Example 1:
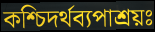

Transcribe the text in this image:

কশ্চিদর্থব্যপাশ্রয়ঃ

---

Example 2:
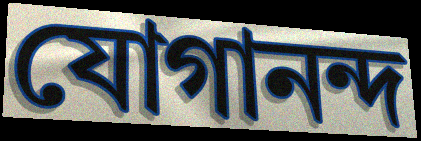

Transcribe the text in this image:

যোগানন্দ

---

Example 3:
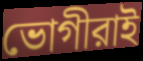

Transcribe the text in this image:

ভোগীরাই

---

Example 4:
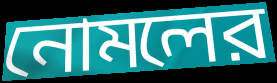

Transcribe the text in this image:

নোমলের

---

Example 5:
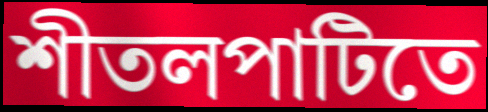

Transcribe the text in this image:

শীতলপাটিতে